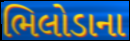
ભિલોડાના